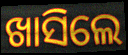
ଖାସିଲେ